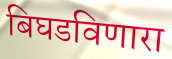
बिघडविणारा